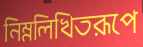
নিম্নলিখিতরূপে